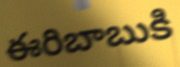
ఈరిబాబుకి